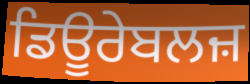
ਡਿਊਰੇਬਲਜ਼